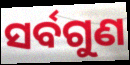
ସର୍ବଗୁଣ